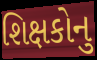
શિક્ષકોનુ